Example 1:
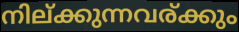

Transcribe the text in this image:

നില്ക്കുന്നവര്ക്കും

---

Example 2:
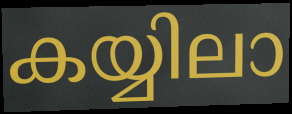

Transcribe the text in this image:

കയ്യിലാ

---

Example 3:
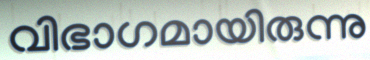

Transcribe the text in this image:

വിഭാഗമായിരുന്നു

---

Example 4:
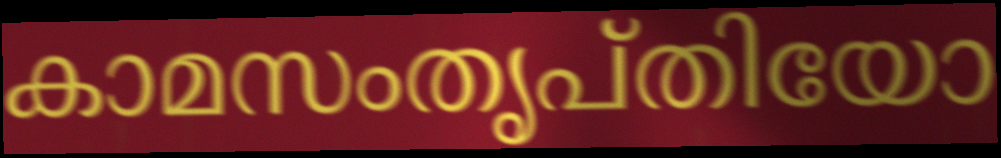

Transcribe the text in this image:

കാമസംതൃപ്തിയോ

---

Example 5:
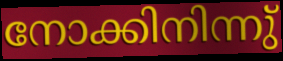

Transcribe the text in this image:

നോക്കിനിന്നു്